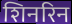
शिनरिन